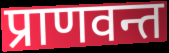
प्राणवन्त